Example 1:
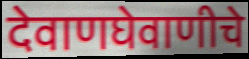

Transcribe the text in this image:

देवाणघेवाणीचे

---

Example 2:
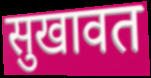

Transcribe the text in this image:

सुखावत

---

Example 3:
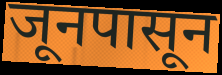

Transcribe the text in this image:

जूनपासून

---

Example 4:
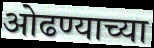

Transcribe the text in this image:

ओढण्याच्या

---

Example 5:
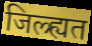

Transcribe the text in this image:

जिल्ह्यत